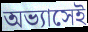
অভ্যাসেই